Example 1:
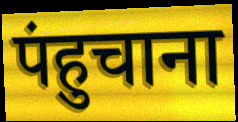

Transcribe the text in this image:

पंहुचाना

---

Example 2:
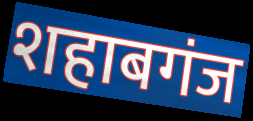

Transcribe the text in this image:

शहाबगंज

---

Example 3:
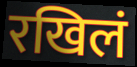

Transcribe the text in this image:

रखिलं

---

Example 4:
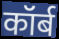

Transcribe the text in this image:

कॉर्ब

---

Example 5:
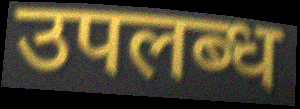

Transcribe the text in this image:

उपलब्‍ध